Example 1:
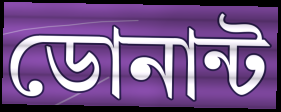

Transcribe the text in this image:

ডোনান্ট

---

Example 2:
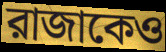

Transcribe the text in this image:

রাজাকেও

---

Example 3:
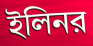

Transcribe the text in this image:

ইলিনর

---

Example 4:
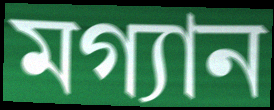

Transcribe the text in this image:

মগ্যান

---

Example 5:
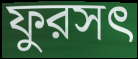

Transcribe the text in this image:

ফুরসৎ